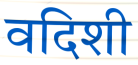
वदिशी